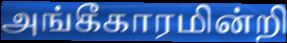
அங்கீகாரமின்றி